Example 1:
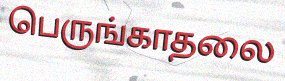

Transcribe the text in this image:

பெருங்காதலை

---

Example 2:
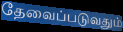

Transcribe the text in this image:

தேவைப்படுவதும்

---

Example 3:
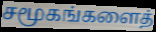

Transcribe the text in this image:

சமூகங்களைத்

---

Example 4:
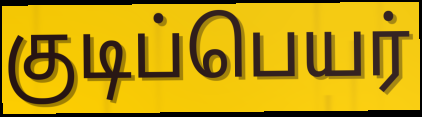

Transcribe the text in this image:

குடிப்பெயர்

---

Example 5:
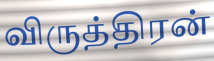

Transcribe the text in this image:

விருத்திரன்